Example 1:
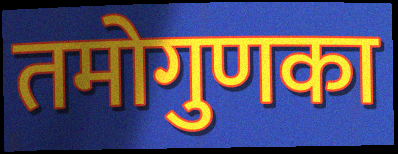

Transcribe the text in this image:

तमोगुणका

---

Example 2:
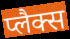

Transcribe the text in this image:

प्लैक्स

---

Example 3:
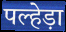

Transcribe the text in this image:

पल्हेड़ा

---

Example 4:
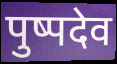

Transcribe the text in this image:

पुष्पदेव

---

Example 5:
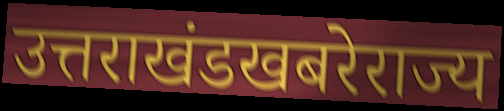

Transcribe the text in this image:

उत्तराखंडखबरेराज्य